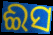
ଈସ